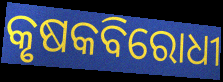
କୃଷକବିରୋଧୀ